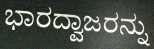
ಭಾರದ್ವಾಜರನ್ನು